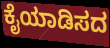
ಕೈಯಾಡಿಸದ